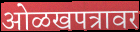
ओळखपत्रावर